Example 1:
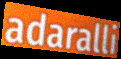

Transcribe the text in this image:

adaralli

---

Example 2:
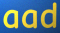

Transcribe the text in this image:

aad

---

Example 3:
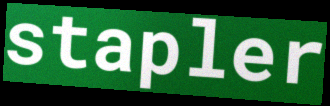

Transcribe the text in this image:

stapler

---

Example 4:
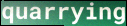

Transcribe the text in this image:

quarrying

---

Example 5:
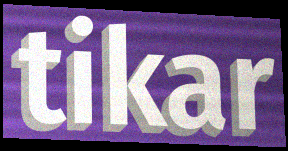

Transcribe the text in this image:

tikar